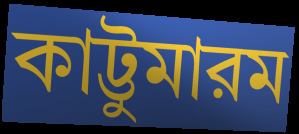
কাট্টুমারম